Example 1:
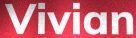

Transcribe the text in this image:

Vivian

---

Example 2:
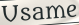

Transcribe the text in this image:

Usame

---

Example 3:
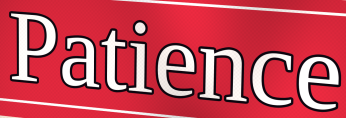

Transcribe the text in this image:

Patience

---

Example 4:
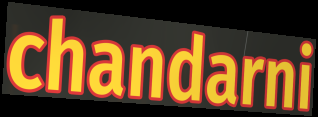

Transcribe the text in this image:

chandarni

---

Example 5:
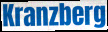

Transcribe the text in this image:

Kranzberg